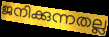
ജനിക്കുന്നതല്ല